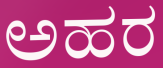
ಅಹರ